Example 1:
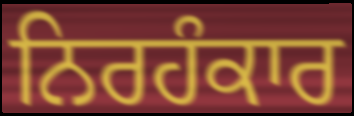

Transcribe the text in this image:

ਨਿਰਹੰਕਾਰ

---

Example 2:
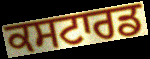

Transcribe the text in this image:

ਕਸਟਾਰਡ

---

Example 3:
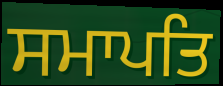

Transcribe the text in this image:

ਸਮਾਪਤਿ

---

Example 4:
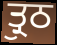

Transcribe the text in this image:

ਤ੍ਰੁਠ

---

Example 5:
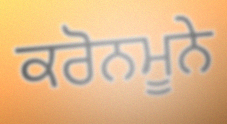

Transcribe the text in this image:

ਕਰੋਨਮੂਨੇ